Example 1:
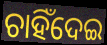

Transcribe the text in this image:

ଚାହିଁଦେଇ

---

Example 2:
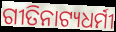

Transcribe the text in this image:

ଗୀତିନାଟ୍ୟଧର୍ମୀ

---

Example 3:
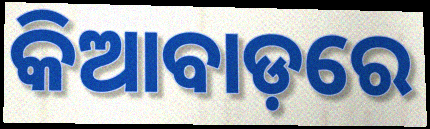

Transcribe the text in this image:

କିଆବାଡ଼ରେ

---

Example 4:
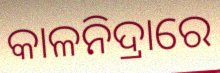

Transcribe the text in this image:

କାଳନିଦ୍ରାରେ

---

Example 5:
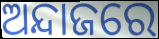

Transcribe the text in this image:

ଅନ୍ଦାଜରେ